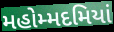
મહોમ્મદમિયાં